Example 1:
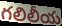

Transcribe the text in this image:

గలిలీయ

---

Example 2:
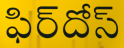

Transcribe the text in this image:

ఫిర్‌దోస్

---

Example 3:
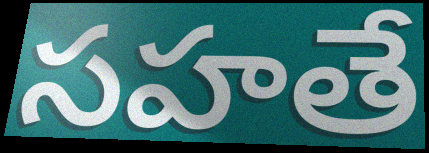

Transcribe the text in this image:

సహతే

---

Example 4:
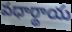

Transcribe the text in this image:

వధార్థాయ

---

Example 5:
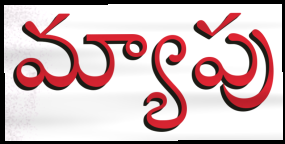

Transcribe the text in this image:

మ్యాపు